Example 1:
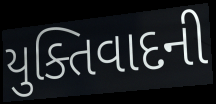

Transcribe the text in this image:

યુક્તિવાદની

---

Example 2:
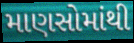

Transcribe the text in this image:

માણસોમાંથી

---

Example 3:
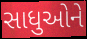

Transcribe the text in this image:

સાધુઓને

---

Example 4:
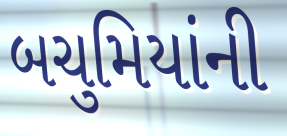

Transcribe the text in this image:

બચુમિયાંની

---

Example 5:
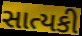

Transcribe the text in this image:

સાત્યકી